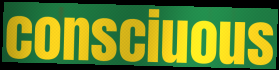
consciuous